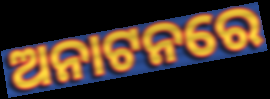
ଅନାଟନରେ